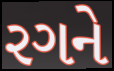
રગને